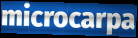
microcarpa